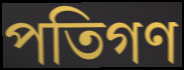
পতিগণ